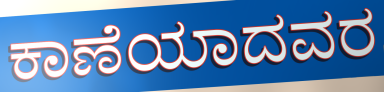
ಕಾಣೆಯಾದವರ